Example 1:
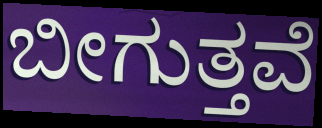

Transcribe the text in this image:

ಬೀಗುತ್ತವೆ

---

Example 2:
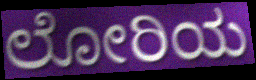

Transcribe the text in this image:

ಲೋರಿಯ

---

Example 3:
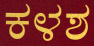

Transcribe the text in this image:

ಕಳಶ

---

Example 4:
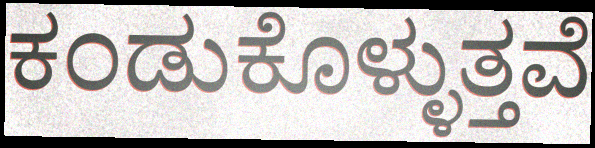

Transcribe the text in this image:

ಕಂಡುಕೊಳ್ಳುತ್ತವೆ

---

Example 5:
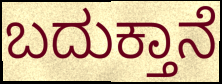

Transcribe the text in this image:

ಬದುಕ್ತಾನೆ